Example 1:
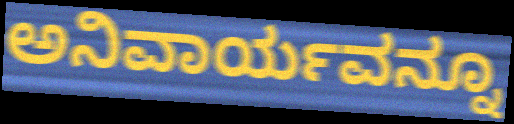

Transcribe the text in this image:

ಅನಿವಾರ್ಯವನ್ನೂ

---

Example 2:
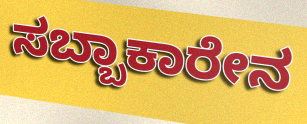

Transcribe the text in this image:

ಸಬ್ಬಾಕಾರೇನ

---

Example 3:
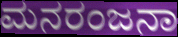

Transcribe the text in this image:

ಮನರಂಜನಾ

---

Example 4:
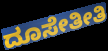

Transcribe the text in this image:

ದೂಸೇತೀತಿ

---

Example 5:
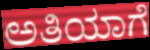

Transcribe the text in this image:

ಅತಿಯಾಗೆ